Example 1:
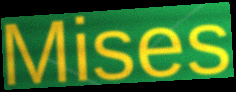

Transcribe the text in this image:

Mises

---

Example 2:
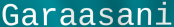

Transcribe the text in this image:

Garaasani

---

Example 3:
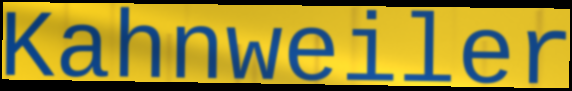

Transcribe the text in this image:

Kahnweiler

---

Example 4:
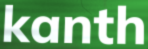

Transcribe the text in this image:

kanth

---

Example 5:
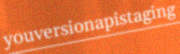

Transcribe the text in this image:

youversionapistaging